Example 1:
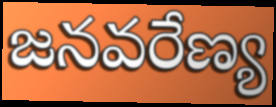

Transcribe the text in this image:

జనవరేణ్య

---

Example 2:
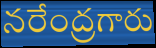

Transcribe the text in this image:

నరేంద్రగారు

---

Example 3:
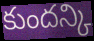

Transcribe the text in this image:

కుందన్కి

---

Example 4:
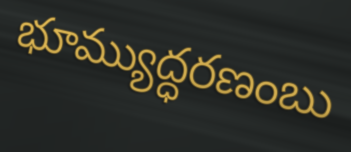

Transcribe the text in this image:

భూమ్యుద్ధరణంబు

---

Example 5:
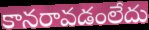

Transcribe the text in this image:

కానరావడంలేదు